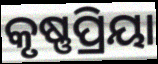
କୃଷ୍ଣପ୍ରିୟା